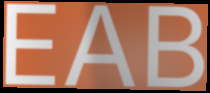
EAB